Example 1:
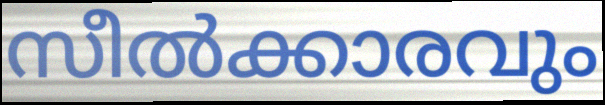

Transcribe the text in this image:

സീൽക്കാരവും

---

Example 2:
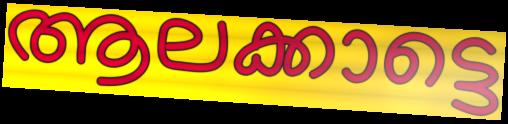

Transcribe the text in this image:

ആലക്കാട്ടെ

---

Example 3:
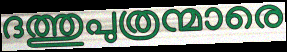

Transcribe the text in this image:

ദത്തുപുത്രന്മാരെ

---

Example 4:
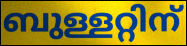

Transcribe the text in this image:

ബുള്ളറ്റിന്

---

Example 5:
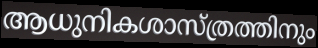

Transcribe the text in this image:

ആധുനികശാസ്ത്രത്തിനും